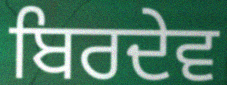
ਬਿਰਦੇਵ